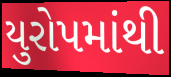
યુરોપમાંથી